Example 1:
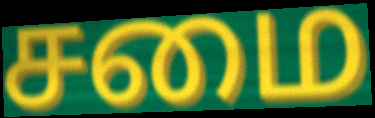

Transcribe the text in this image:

சமை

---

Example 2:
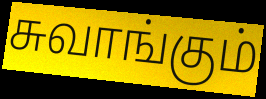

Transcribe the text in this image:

சுவாங்கும்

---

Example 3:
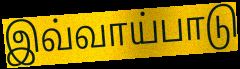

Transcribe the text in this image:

இவ்வாய்பாடு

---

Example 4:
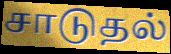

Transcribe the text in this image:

சாடுதல்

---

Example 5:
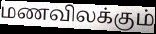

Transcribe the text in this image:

மணவிலக்கும்